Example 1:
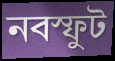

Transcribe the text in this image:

নবস্ফুট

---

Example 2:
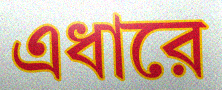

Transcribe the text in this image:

এধারে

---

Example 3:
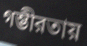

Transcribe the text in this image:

গম্ভীরতায়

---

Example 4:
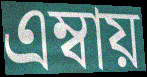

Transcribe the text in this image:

এম্বায়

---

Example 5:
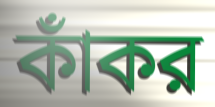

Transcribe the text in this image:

কাঁকর